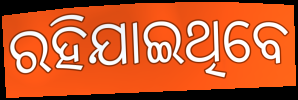
ରହିଯାଇଥିବେ